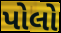
પોલો